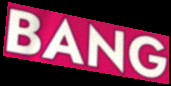
BANG